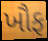
ખૌફ